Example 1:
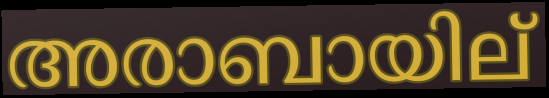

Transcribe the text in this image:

അരാബായില്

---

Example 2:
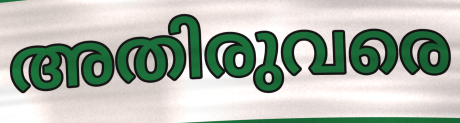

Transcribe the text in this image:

അതിരുവരെ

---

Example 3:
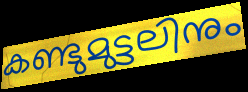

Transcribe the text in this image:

കണ്ടുമുട്ടലിനും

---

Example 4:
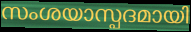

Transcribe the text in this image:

സംശയാസ്പദമായി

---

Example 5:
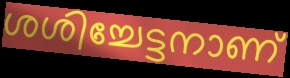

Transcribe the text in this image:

ശശിച്ചേട്ടനാണ്